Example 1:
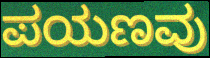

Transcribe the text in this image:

ಪಯಣವು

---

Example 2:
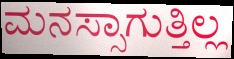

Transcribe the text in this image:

ಮನಸ್ಸಾಗುತ್ತಿಲ್ಲ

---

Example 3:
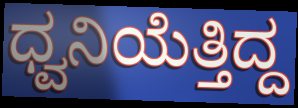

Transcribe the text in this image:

ಧ್ವನಿಯೆತ್ತಿದ್ದ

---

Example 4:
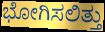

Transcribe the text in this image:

ಭೋಗಿಸಲಿತ್ತು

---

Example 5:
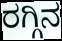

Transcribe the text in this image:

ರಗ್ಗಿನ